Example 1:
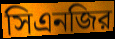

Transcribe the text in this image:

সিএনজির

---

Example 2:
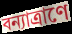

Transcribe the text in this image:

বন্যাত্রাণে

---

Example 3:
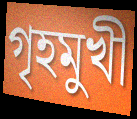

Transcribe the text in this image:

গৃহমুখী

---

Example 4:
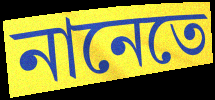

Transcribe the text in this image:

নানেতে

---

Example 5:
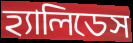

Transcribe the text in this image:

হ্যালিডেস